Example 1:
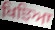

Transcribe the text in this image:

ਖਿਝਿਆ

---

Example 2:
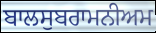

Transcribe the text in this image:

ਬਾਲਸੁਬਰਾਮਨੀਅਮ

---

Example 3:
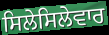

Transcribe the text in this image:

ਸਿਲੇਸਿਲੇਵਾਰ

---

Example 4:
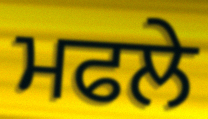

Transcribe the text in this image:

ਮਫਲੇ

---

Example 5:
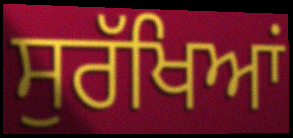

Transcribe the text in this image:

ਸੁਰੱਖਿਆਂ